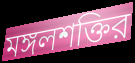
মঙ্গলশক্তির